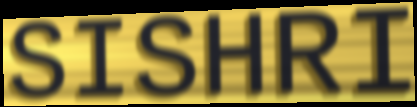
SISHRI